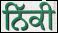
ਨਿੱਕੀ